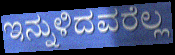
ಇನ್ನುಳಿದವರೆಲ್ಲ